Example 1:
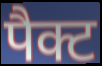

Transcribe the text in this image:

पैक्ट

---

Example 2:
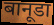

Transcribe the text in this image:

बानूडा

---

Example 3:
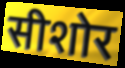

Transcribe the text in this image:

सीशोर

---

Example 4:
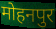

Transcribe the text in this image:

मोहनपुर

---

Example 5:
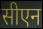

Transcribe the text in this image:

सीएन